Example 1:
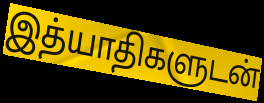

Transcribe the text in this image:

இத்யாதிகளுடன்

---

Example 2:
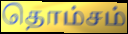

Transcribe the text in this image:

தொம்சம்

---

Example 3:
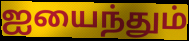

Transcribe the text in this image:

ஐயைந்தும்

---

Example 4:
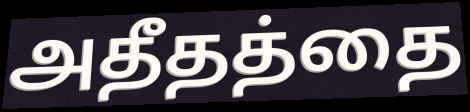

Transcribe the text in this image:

அதீதத்தை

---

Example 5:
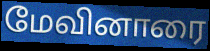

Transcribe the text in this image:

மேவினாரை